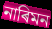
নাৰিমন